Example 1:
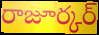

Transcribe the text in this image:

రాజూర్కర్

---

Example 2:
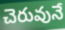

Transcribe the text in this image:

చెరువునే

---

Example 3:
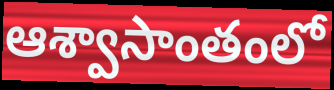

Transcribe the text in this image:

ఆశ్వాసాంతంలో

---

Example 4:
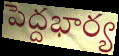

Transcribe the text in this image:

పెద్దభార్య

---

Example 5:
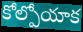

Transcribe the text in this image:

కోల్పోయాక